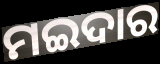
ମଇଦାର